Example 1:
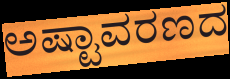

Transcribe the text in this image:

ಅಷ್ಟಾವರಣದ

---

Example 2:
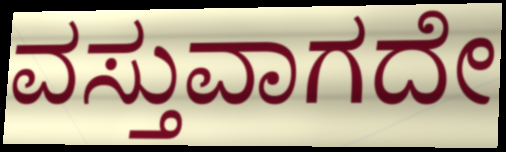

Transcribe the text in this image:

ವಸ್ತುವಾಗದೇ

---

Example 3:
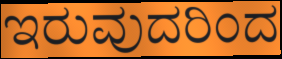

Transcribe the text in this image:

ಇರುವುದರಿಂದ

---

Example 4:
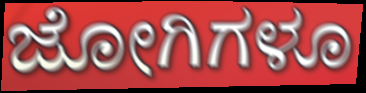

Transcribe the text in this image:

ಜೋಗಿಗಳೂ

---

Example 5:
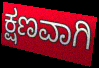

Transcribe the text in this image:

ಕ್ಷಣವಾಗಿ